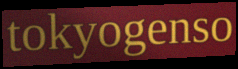
tokyogenso